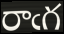
రాఁగ